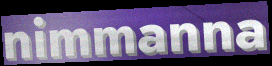
nimmanna